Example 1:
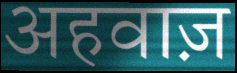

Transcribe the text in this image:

अहवाज़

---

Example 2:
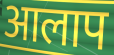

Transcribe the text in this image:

आलाप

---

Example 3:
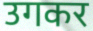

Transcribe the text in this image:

उगकर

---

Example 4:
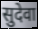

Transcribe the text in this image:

सुदेवा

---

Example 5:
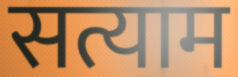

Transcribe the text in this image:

सत्याम